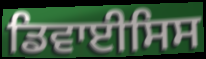
ਡਿਵਾਈਸਿਸ